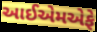
આઈએમએફે